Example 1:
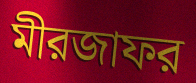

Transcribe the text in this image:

মীরজাফর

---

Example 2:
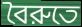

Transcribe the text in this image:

বৈরুতে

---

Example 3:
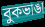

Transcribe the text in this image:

বুকভাঙা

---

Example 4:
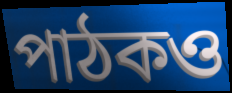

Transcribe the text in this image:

পাঠকও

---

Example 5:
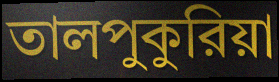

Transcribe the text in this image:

তালপুকুরিয়া